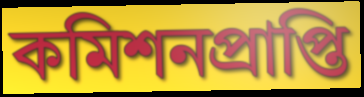
কমিশনপ্রাপ্তি